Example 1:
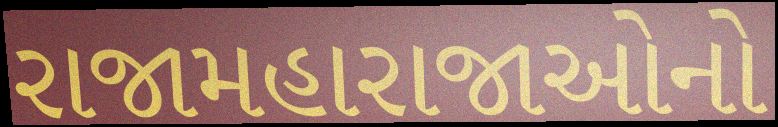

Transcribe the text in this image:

રાજામહારાજાઓનો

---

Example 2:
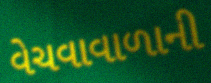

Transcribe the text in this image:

વેચવાવાળાની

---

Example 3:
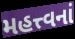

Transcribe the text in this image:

મહત્ત્વનાં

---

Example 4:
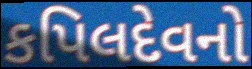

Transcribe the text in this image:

કપિલદેવનો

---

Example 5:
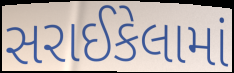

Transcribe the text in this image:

સરાઈકેલામાં